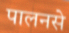
पालनसे